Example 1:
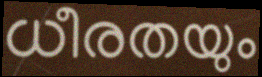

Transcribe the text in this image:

ധീരതയും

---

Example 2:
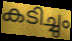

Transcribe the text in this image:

കടിച്ചും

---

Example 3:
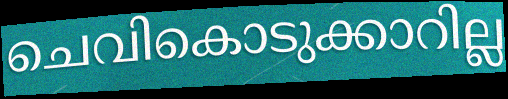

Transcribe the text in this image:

ചെവികൊടുക്കാറില്ല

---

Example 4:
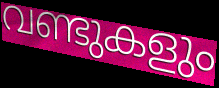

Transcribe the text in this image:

വണ്ടുകളും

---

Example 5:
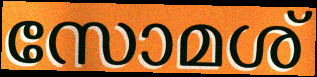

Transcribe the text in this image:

സോമശ്